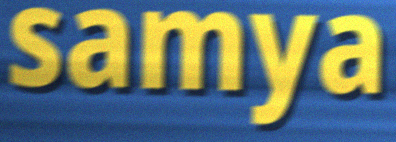
samya